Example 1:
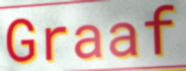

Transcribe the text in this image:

Graaf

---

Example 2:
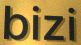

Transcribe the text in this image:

bizi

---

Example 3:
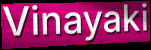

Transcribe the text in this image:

Vinayaki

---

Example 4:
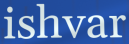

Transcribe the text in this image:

ishvar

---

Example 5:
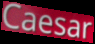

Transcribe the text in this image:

Caesar